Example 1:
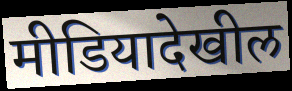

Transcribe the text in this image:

मीडियादेखील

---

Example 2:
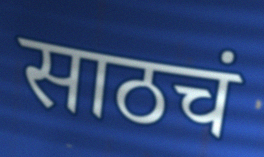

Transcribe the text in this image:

साठचं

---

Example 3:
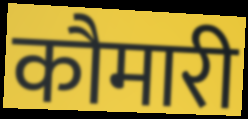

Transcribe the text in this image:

कौमारी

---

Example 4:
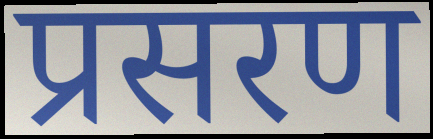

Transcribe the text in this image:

प्रसरण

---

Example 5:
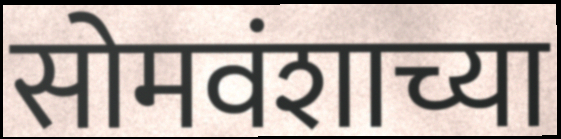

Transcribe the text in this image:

सोमवंशाच्या